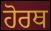
ਹੋਰਥ